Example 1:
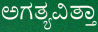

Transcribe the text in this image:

ಅಗತ್ಯವಿತ್ತಾ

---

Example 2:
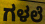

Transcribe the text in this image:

ಗಳಲೆ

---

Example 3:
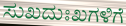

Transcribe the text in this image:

ಸುಖದುಃಖಗಳಿಗೆ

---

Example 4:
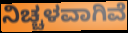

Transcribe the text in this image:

ನಿಚ್ಚಳವಾಗಿವೆ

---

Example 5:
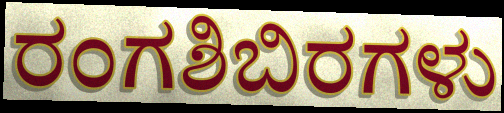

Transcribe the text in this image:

ರಂಗಶಿಬಿರಗಳು